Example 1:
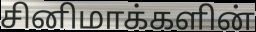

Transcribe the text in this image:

சினிமாக்களின்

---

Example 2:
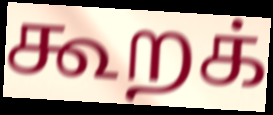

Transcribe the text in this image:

கூறக்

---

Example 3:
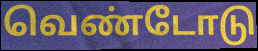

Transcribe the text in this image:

வெண்டோடு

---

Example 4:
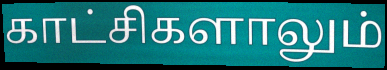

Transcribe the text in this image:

காட்சிகளாலும்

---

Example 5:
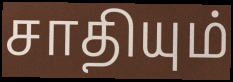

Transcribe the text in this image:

சாதியும்